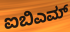
ಐಬಿಎಮ್